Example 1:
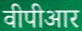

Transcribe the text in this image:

वीपीआर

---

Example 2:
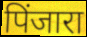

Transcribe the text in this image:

पिंजारा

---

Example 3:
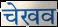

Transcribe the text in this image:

चेखव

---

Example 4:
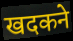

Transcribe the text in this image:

खदकने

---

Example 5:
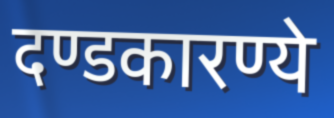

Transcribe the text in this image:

दण्डकारण्ये